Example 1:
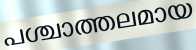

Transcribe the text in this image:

പശ്ചാത്തലമായ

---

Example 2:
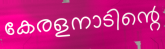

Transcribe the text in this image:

കേരളനാടിന്റെ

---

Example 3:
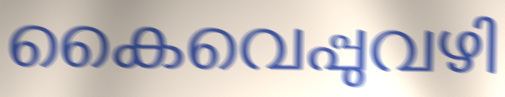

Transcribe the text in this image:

കൈവെപ്പുവഴി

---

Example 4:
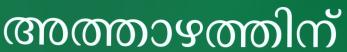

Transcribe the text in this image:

അത്താഴത്തിന്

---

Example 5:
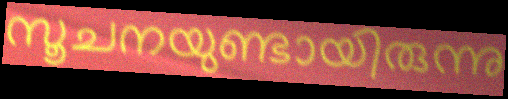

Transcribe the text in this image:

സൂചനയുണ്ടായിരുന്നു